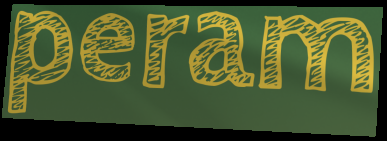
peram